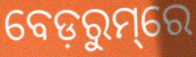
ବେଡ଼ରୁମ୍‌ରେ